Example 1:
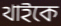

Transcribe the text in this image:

থাইকে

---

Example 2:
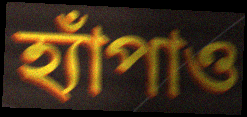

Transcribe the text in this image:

হ্যাঁপাও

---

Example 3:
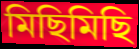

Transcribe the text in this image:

মিছিমিছি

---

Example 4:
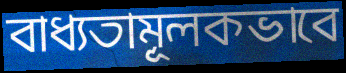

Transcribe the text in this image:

বাধ্যতামূলকভাবে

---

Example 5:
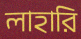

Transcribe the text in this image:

লাহারি